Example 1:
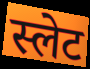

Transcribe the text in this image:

स्लेट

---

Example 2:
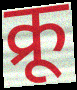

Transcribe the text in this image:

क्रू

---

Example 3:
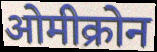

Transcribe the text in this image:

ओमीक्रोन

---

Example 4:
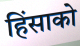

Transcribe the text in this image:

हिंसाको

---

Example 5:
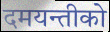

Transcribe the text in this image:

दमयन्तीको